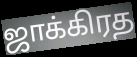
ஜாக்கிரத